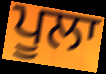
ਪੂਲਾ